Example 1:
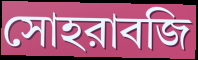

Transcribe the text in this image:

সোহরাবজি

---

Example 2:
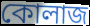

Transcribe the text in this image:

কোলাজ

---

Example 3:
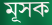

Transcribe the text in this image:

মূসক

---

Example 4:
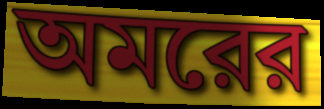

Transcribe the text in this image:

অমরের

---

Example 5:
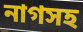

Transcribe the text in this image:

নাগসহ